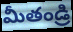
మీతండ్రి